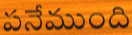
పనేముంది